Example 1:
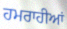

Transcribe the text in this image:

ਹਮਰਾਹੀਆਂ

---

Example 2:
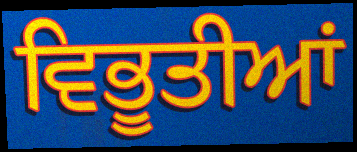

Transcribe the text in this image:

ਵਿਭੂਤੀਆਂ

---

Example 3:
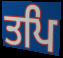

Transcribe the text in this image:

ਤਪਿ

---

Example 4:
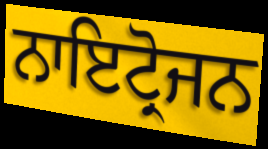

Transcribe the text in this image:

ਨਾਇਟ੍ਰੋਜਨ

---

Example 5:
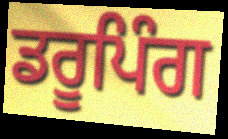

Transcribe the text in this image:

ਡਰੂਪਿੰਗ